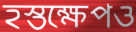
হস্তক্ষেপও